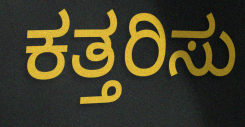
ಕತ್ತರಿಸು